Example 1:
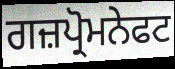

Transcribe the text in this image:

ਗਜ਼ਪ੍ਰੋਮਨੇਫਟ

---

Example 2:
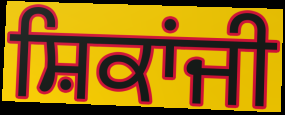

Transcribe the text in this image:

ਸ਼ਿਕਾਂਜੀ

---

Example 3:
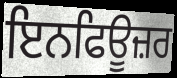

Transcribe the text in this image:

ਇਨਫਿਊਜ਼ਰ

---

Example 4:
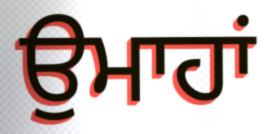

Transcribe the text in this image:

ਉਮਾਹਾਂ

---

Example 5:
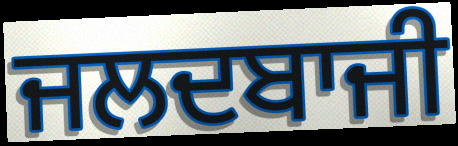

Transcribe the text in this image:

ਜਲਦਬਾਜੀ